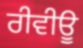
ਰੀਵੀਊ